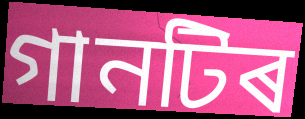
গানটিৰ